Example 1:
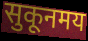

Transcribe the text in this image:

सुकूनमय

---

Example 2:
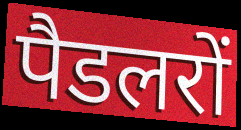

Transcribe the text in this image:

पैडलरों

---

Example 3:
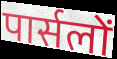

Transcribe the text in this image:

पार्सलों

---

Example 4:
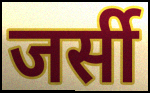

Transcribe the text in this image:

जर्सी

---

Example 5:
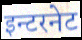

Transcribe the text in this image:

इन्टरनेट